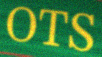
OTS